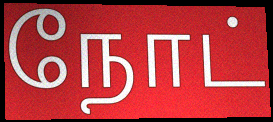
நோட்